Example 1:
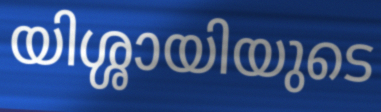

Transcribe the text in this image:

യിശ്ശായിയുടെ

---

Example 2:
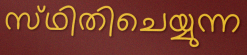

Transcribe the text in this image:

സ്‌ഥിതിചെയ്യുന്ന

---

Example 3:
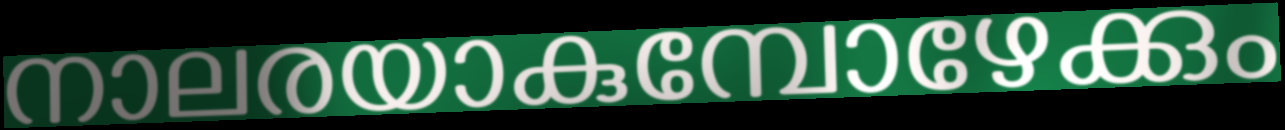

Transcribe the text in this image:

നാലരയാകുമ്പോഴേക്കും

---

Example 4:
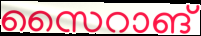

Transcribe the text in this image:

സൈറാങ്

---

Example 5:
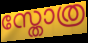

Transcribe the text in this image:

സ്തോത്ര